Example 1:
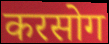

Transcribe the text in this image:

करसोग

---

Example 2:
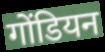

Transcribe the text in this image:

गोंडियन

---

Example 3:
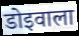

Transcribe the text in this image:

डोइवाला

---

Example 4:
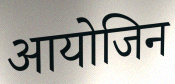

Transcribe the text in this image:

आयोजिन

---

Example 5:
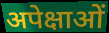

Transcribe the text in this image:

अपेक्षाओं